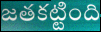
జతకట్టింది